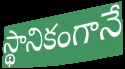
స్థానికంగానే